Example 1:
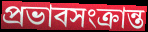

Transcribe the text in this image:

প্রভাবসংক্রান্ত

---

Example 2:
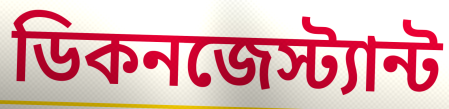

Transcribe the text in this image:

ডিকনজেস্ট্যান্ট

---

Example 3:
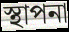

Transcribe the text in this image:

স্থাপনা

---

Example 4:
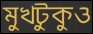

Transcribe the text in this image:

মুখটুকুও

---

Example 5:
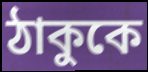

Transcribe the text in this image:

ঠাকুকে